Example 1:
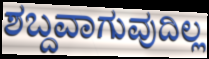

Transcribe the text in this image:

ಶಬ್ದವಾಗುವುದಿಲ್ಲ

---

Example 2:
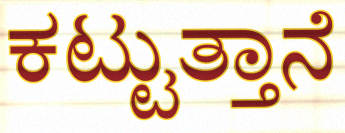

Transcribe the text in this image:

ಕಟ್ಟುತ್ತಾನೆ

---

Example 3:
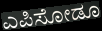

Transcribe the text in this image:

ಎಪಿಸೋಡೂ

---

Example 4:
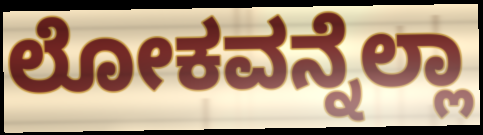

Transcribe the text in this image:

ಲೋಕವನ್ನೆಲ್ಲಾ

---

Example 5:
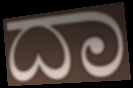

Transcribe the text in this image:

ದಾ